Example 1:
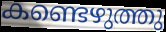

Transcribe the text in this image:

കണ്ടെഴുത്തു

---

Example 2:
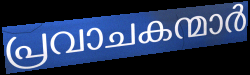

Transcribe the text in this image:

പ്രവാചകന്മാർ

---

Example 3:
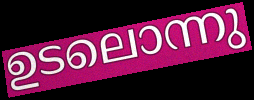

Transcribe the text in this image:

ഉടലൊന്നു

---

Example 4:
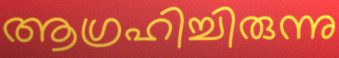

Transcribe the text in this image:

ആഗ്രഹിച്ചിരുന്നു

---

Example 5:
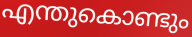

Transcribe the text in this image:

എന്തുകൊണ്ടും